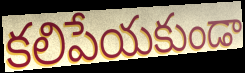
కలిపేయకుండా